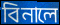
বিনালে